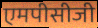
एमपीसीजी